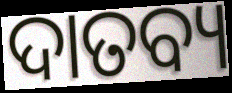
ଦାତବ୍ୟ